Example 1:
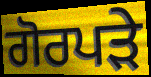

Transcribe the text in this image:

ਗੋਰਪੜੇ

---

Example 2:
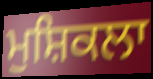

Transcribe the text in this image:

ਮੁਸ਼ਿਕਲਾ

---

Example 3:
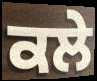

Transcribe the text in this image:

ਕਲੇ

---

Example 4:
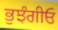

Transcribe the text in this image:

ਭੁਝੰਗੀਓ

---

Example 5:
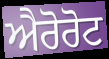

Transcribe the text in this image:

ਐਰੋਰੋਟ